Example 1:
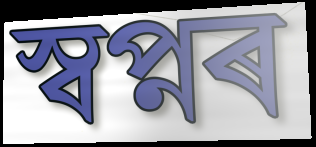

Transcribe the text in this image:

স্বপ্নৰ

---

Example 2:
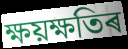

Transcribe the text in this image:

ক্ষয়ক্ষতিৰ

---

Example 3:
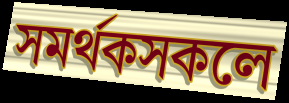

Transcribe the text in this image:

সমৰ্থকসকলে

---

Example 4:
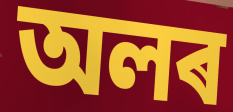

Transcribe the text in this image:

অলৰ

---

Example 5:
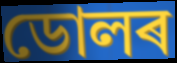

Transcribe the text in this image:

ডোলৰ